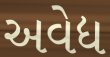
અવેદ્ય